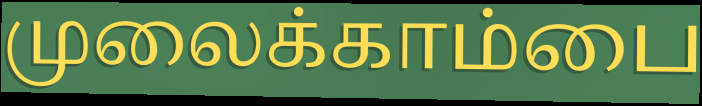
முலைக்காம்பை